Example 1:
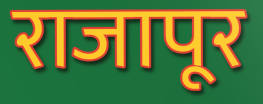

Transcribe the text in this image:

राजापूर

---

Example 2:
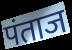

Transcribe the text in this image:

पंताज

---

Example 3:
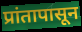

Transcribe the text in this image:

प्रांतापासून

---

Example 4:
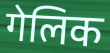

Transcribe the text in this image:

गेलिक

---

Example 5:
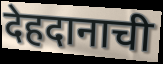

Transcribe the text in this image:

देहदानाची